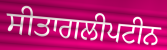
ਸੀਤਾਗਲੀਪਟੀਨ